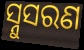
ସ୍ନୁସରଣ